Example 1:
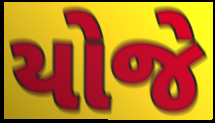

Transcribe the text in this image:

યોજે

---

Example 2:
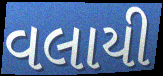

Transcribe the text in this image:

વલાયી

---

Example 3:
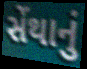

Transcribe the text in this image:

સેંથાનું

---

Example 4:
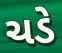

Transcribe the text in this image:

ચડે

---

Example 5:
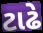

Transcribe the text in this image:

ટાઢે